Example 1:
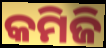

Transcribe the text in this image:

କମିଜି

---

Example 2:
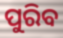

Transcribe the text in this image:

ପୁରିବ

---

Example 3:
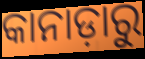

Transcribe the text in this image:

କାନାଡ଼ାରୁ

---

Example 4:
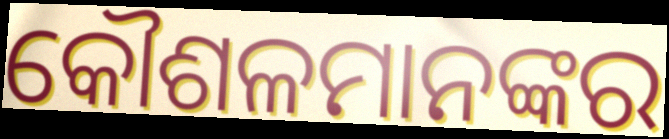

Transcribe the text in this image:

କୌଶଳମାନଙ୍କର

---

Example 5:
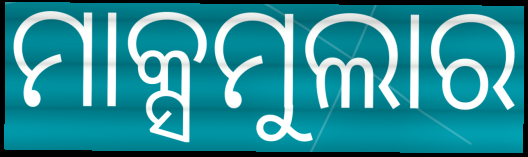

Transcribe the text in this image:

ମାକ୍ସମୁଲାର